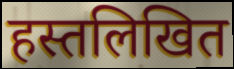
हस्तलिखित